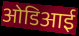
ओडिआई